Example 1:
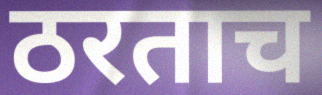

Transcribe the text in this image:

ठरताच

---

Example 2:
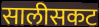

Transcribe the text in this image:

सालीसकट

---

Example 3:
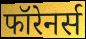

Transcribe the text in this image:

फॉरेनर्स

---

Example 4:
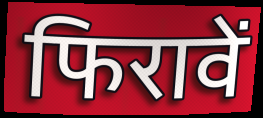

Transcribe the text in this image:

फिरावें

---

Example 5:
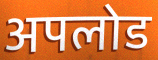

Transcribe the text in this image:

अपलोड